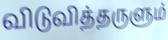
விடுவித்தருளும்